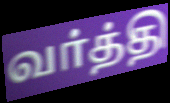
வர்த்தி